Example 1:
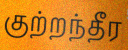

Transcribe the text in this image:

குற்றந்தீர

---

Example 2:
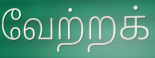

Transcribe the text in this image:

வேற்றக்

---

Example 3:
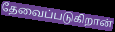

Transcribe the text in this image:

தேவைப்படுகிறான்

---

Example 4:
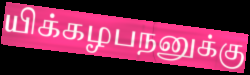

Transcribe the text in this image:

யிக்கழபநனுக்கு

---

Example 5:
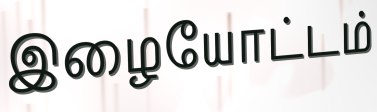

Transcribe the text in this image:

இழையோட்டம்